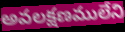
అవలక్షణములేని